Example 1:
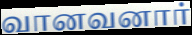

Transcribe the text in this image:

வானவனார்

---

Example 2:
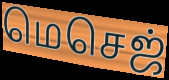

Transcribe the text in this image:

மெசெஜ்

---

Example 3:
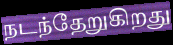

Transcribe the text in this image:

நடந்தேறுகிறது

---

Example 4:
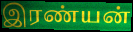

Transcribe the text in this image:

இரண்யன்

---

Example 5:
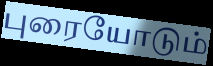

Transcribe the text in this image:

புரையோடும்